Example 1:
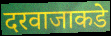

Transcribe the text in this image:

दरवाजाकडे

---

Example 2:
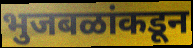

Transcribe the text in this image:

भुजबळांकडून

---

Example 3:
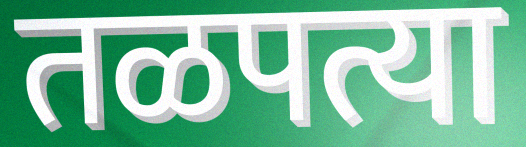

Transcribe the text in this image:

तळपत्या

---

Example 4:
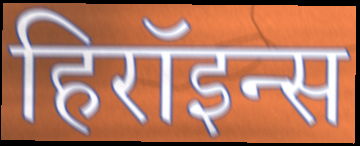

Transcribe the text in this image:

हिरॉइन्स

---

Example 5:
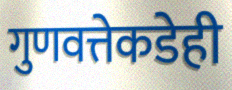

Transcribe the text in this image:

गुणवत्तेकडेही